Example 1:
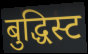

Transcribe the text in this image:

बुद्धिस्ट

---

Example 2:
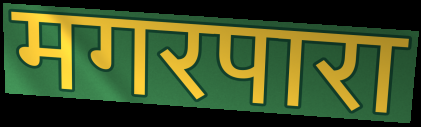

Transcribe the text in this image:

मगरपारा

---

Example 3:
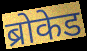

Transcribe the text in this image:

ब्रोकेड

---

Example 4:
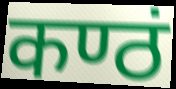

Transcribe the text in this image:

कण्ठं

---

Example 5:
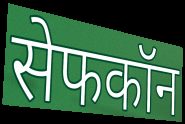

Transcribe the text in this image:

सेफकॉन